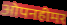
ओपनहीमर